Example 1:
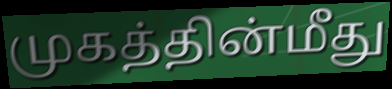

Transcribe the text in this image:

முகத்தின்மீது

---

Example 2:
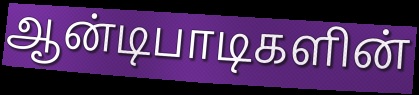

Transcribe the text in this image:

ஆன்டிபாடிகளின்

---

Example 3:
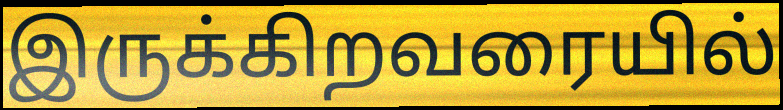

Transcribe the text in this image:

இருக்கிறவரையில்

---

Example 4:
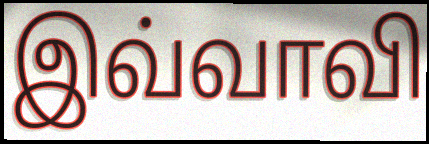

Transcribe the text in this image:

இவ்வாவி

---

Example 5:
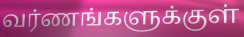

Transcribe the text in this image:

வர்ணங்களுக்குள்